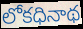
లోకధినాథ